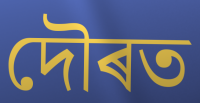
দৌৰত